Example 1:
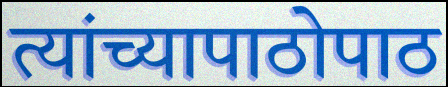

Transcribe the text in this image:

त्यांच्यापाठोपाठ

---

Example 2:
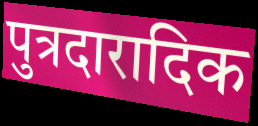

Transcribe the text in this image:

पुत्रदारादिक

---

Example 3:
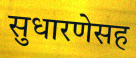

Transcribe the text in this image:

सुधारणेसह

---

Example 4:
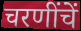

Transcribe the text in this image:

चरणींचें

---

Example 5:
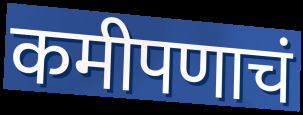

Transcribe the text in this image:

कमीपणाचं